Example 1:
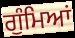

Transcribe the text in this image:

ਗੁੰਮਿਆਂ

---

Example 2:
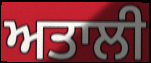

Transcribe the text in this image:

ਅਤਾਲੀ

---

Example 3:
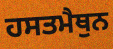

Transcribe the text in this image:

ਹਸਤਮੈਥੁਨ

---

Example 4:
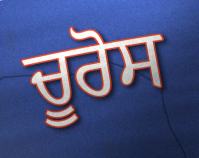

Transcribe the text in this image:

ਚੂਰੋਸ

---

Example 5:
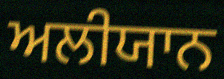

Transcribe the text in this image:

ਅਲੀਯਾਨ